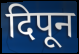
दिपून